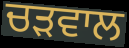
ਚੜਵਾਲ